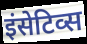
इंसेटिव्स